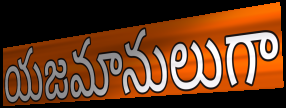
యజమానులుగా